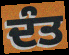
ਦੰਤ